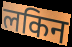
लकिन